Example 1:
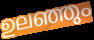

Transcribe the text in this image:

ഉലഞ്ഞും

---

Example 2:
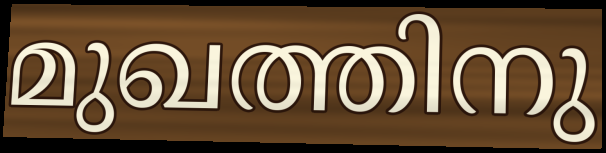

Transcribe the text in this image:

മുഖത്തിനു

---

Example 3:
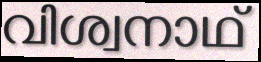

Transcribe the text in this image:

വിശ്വനാഥ്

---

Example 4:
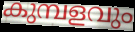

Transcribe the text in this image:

കുമ്പളവും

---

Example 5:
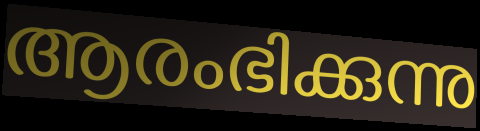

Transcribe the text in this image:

ആരംഭിക്കുന്നു